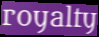
royalty